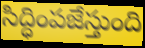
సిద్ధింపజేస్తుంది